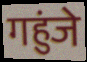
गहुंजे